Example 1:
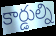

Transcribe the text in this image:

కార్డుల్ని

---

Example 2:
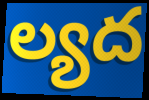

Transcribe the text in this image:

ల్యద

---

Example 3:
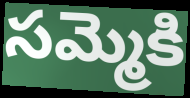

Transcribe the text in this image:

సమ్మెకి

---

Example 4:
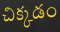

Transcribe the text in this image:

చిక్కడం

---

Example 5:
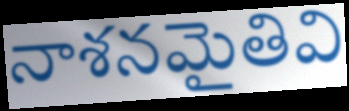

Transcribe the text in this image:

నాశనమైతివి